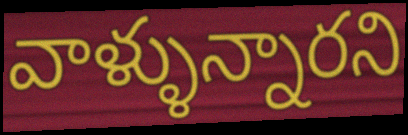
వాళ్ళున్నారని